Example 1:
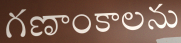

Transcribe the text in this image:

గణాంకాలను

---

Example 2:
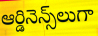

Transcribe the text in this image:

ఆర్డినెన్స్‌లుగా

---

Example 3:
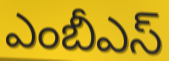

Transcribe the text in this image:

ఎంబీఎస్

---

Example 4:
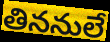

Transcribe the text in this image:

తిననులే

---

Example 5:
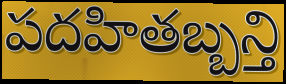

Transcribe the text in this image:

పదహితబ్బన్తి